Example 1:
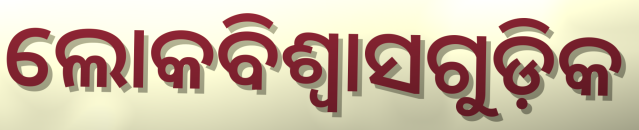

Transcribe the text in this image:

ଲୋକବିଶ୍ୱାସଗୁଡ଼ିକ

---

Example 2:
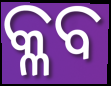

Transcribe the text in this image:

କ୍ଳବ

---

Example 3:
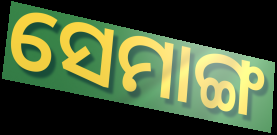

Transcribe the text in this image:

ସେମାଙ୍ଗ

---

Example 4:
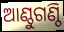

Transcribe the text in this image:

ଆଣ୍ଠୁଗଣ୍ଠି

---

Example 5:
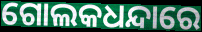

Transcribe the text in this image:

ଗୋଲକଧନ୍ଦାରେ